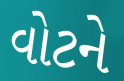
વોટને